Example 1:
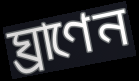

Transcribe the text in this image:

ঘ্রাণেন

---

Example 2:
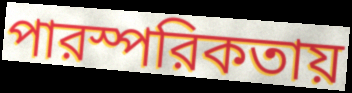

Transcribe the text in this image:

পারস্পরিকতায়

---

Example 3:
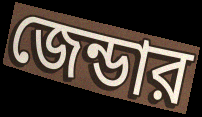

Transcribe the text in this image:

জেন্ডার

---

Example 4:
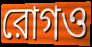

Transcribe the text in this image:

রোগও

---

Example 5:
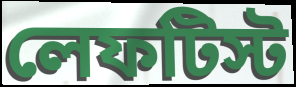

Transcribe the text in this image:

লেফটিস্ট